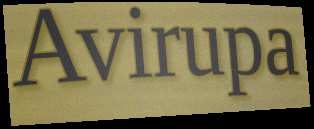
Avirupa